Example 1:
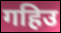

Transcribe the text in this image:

गहिउ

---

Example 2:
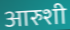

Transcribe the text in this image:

आरुशी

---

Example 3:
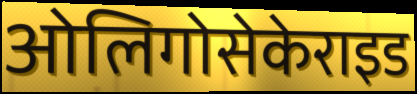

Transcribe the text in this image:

ओलिगोसेकेराइड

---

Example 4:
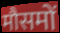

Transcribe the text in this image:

मौसमों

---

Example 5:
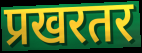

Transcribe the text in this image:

प्रखरतर